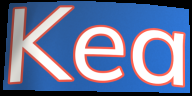
Kea